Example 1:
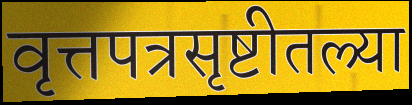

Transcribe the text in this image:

वृत्तपत्रसृष्टीतल्या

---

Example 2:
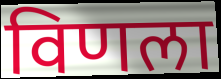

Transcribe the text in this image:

विणला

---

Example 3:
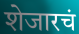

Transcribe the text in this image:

शेजारचं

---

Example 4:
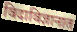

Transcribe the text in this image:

विदाविज्ञानात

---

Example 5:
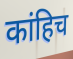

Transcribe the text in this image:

कांहिच